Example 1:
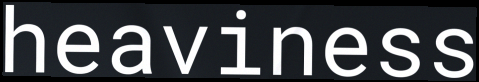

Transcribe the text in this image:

heaviness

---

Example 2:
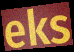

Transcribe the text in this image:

eks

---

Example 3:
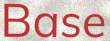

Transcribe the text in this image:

Base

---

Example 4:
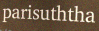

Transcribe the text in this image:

parisuththa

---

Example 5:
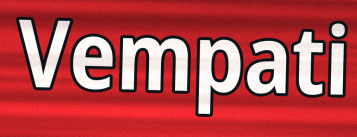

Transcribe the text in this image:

Vempati